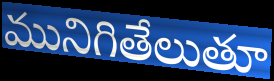
మునిగితేలుతూ